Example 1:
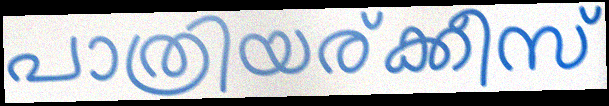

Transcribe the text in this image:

പാത്രിയര്ക്കീസ്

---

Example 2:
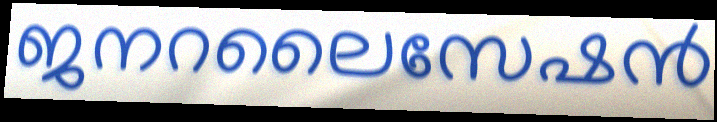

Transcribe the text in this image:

ജനറലൈസേഷൻ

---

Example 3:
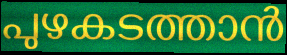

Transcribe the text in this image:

പുഴകടത്താൻ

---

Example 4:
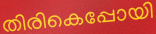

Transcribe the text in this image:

തിരികെപ്പോയി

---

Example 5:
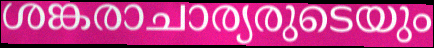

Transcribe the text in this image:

ശങ്കരാചാര്യരുടെയും